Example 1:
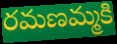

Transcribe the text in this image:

రమణమ్మకి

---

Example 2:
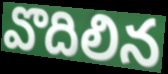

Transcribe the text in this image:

వొదిలిన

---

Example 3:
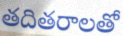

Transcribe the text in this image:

తదితరాలతో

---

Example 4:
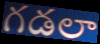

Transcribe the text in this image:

గడలా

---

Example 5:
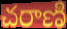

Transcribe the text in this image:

చరాణి